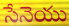
సేనెయు